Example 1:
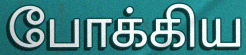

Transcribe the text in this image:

போக்கிய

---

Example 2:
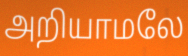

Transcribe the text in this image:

அறியாமலே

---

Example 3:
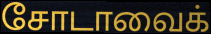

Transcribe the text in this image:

சோடாவைக்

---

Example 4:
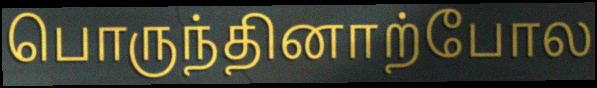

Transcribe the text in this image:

பொருந்தினாற்போல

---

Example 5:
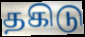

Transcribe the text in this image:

தகிடு